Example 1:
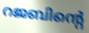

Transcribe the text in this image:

റജബിന്റെ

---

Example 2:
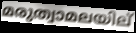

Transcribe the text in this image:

മരുത്വാമലയില്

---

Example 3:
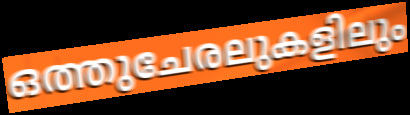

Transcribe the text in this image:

ഒത്തുചേരലുകളിലും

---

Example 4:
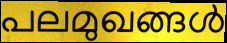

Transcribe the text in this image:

പലമുഖങ്ങൾ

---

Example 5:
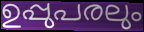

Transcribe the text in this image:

ഉപ്പുപരലും